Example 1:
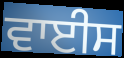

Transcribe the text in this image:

ਵਾਈਸ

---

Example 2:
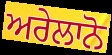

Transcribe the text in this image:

ਅਰੇਲਾਨੋ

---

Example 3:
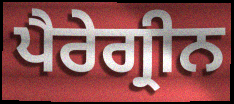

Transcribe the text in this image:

ਪੈਰੇਗ੍ਰੀਨ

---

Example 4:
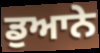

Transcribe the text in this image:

ਡੁਆਨੇ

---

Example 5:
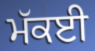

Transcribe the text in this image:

ਮੱਕਈ